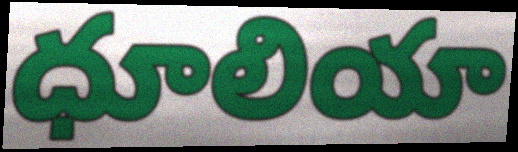
ధూలియా